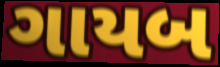
ગાયબ